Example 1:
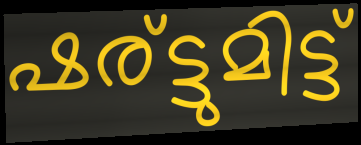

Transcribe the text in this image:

ഷര്ട്ടുമിട്ട്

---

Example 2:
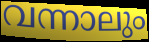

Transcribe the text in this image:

വന്നാലും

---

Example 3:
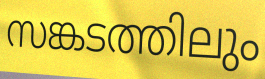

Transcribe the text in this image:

സങ്കടത്തിലും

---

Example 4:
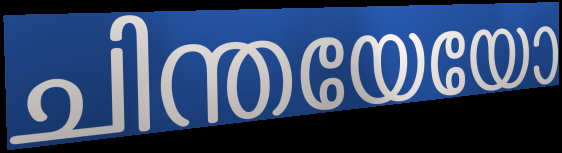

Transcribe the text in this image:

ചിന്തയേയോ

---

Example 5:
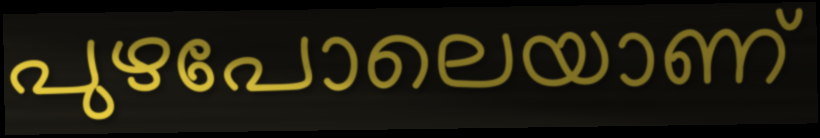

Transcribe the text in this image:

പുഴപോലെയാണ്